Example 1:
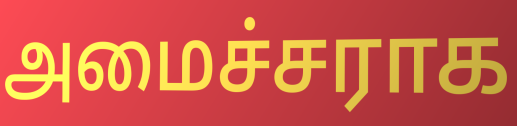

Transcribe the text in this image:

அமைச்சராக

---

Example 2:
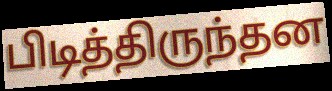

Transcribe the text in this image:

பிடித்திருந்தன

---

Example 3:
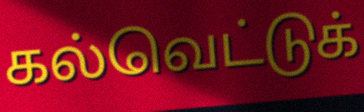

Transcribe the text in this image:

கல்வெட்டுக்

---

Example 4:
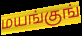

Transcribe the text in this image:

மயங்குங்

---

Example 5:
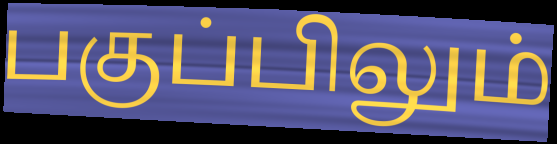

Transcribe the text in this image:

பகுப்பிலும்